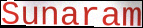
Sunaram